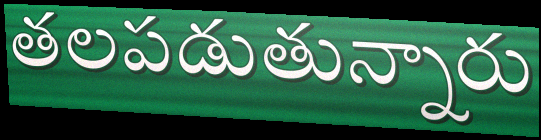
తలపడుతున్నారు